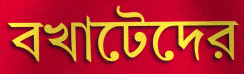
বখাটেদের